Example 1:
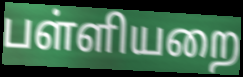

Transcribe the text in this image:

பள்ளியறை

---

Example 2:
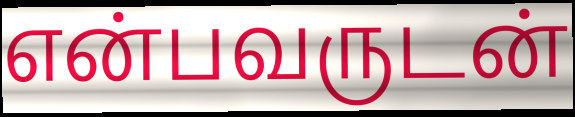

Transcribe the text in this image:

என்பவருடன்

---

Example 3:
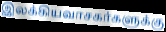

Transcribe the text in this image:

இலக்கியவாசகர்களுக்கு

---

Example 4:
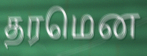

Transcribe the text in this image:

தரமென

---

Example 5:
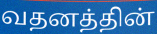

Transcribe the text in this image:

வதனத்தின்